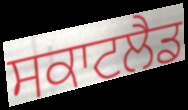
ਸਕਾਟਲੈਡ